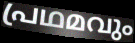
പ്രഥമവും